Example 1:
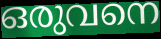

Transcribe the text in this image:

ഒരുവനെ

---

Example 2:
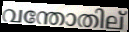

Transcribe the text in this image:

വന്തോതില്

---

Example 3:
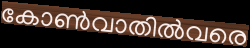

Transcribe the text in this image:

കോൺവാതിൽവരെ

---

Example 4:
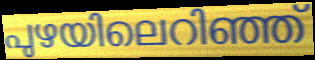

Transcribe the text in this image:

പുഴയിലെറിഞ്ഞ്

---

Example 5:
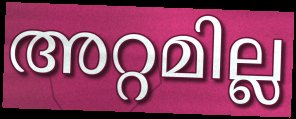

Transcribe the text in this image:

അറ്റമില്ല